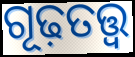
ଗୂଢ଼ତତ୍ତ୍ୱ